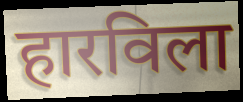
हारविला